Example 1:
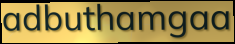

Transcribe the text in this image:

adbuthamgaa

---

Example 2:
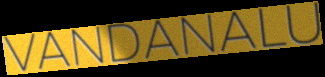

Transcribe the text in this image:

VANDANALU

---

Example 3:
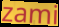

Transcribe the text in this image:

zami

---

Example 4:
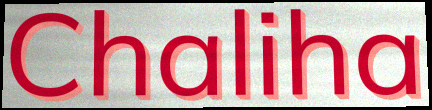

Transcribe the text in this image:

Chaliha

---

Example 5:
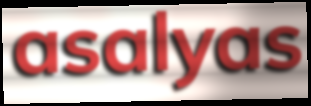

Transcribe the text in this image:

asalyas